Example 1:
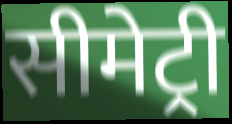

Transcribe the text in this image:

सीमेट्री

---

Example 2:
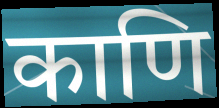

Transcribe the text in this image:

काणि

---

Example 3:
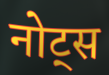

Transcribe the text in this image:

नोट्‌स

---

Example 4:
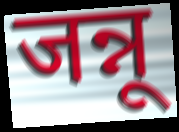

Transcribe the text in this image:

जन्नू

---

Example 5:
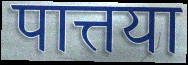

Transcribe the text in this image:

पात्तया